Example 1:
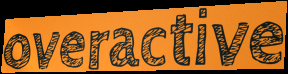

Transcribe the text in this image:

overactive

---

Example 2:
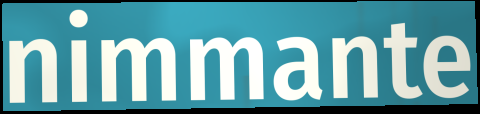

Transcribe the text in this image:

nimmante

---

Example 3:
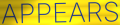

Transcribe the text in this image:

APPEARS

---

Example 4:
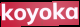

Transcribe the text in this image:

koyoka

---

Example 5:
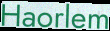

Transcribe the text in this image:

Haorlem